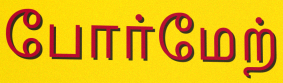
போர்மேற்